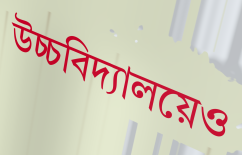
উচ্চবিদ্যালয়েও